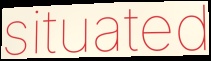
situated